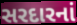
સરદારનાં